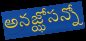
అనజ్ఝోసన్నో